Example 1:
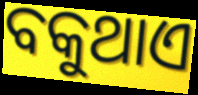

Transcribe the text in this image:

ବକୁଥାଏ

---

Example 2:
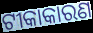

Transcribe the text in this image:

ଟୀକାକାରଣ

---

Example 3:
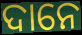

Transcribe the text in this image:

ଦାନେ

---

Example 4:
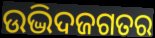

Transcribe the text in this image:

ଉଦ୍ଭିଦଜଗତର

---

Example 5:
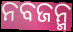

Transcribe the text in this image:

ନବଜନ୍ମ